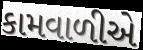
કામવાળીએ